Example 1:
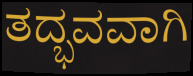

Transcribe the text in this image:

ತದ್ಭವವಾಗಿ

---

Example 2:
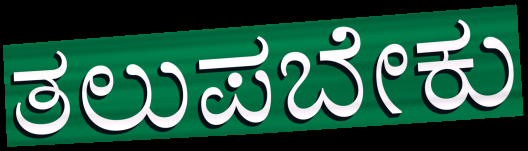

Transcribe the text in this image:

ತಲುಪಬೇಕು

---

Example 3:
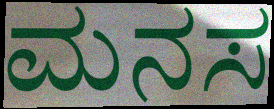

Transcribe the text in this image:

ಮನಸ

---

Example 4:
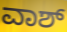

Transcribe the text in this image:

ವಾಶ್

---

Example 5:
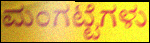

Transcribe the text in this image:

ಮಂಗಟ್ಟೆಗಳು